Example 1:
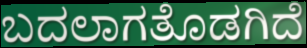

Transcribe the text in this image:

ಬದಲಾಗತೊಡಗಿದೆ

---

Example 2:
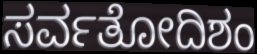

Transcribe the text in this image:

ಸರ್ವತೋದಿಶಂ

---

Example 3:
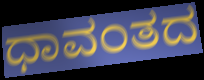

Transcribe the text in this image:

ಧಾವಂತದ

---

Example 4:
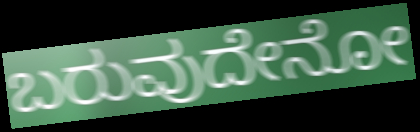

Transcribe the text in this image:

ಬರುವುದೇನೋ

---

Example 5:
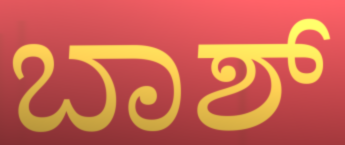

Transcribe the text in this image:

ಬಾಶ್